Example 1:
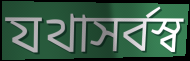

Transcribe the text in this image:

যথাসর্বস্ব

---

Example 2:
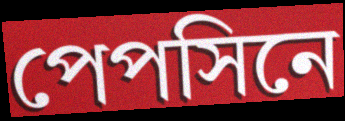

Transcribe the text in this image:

পেপসিনে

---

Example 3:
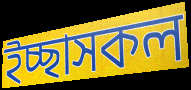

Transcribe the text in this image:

ইচ্ছাসকল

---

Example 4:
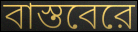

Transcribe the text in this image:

বাস্তবেরে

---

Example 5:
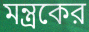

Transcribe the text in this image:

মন্ত্রকের